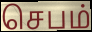
செபம்